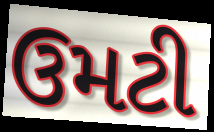
ઉમટી